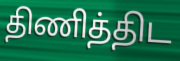
திணித்திட